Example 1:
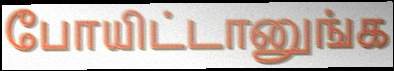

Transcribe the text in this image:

போயிட்டானுங்க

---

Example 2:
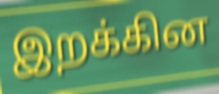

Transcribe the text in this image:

இறக்கின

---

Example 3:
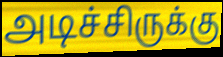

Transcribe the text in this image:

அடிச்சிருக்கு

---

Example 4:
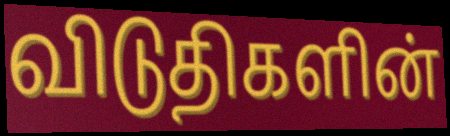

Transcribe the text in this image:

விடுதிகளின்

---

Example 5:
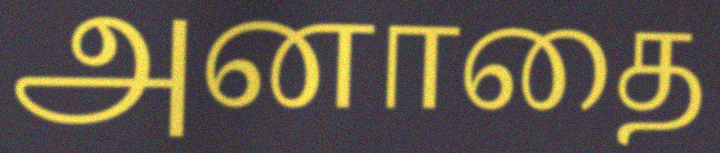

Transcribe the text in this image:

அனாதை